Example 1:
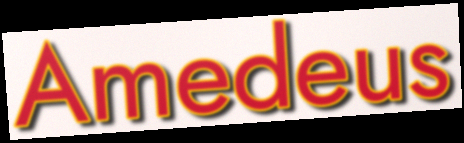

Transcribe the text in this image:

Amedeus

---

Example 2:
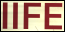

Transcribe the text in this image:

IIFE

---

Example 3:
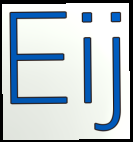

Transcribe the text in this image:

Eij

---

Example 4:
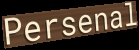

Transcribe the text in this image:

Persenal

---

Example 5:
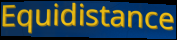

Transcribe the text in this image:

Equidistance